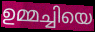
ഉമ്മച്ചിയെ